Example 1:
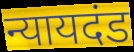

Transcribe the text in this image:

न्यायदंड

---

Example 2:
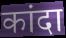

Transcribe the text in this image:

कांदा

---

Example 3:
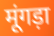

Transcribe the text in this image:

मूंगड़ा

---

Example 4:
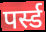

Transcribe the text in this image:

पर्स्ड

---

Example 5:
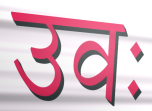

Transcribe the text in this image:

उवः